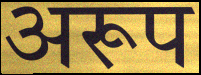
अरूप